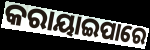
କରାୟାଇପାରେ